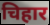
चिहार